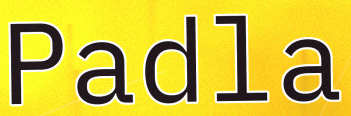
Padla